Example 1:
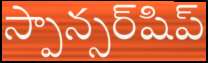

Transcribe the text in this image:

స్పాన్సర్‌షిప్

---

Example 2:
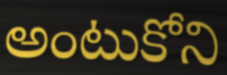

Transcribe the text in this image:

అంటుకోని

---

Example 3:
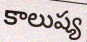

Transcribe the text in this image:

కాలుష్య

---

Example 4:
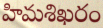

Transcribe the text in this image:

హిమశిఖరం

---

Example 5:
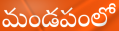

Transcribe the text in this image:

మండపంలో